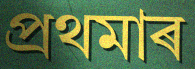
প্ৰথমাৰ